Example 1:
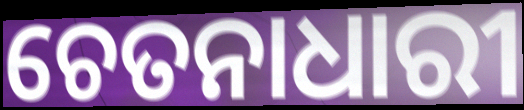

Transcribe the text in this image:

ଚେତନାଧାରୀ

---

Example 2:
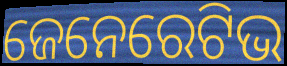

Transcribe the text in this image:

ଜେନେରେଟିଭ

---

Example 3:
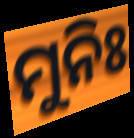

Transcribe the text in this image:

ମୁନିଃ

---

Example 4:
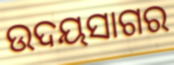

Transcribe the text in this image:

ଉଦୟସାଗର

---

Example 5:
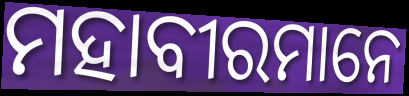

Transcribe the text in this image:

ମହାବୀରମାନେ